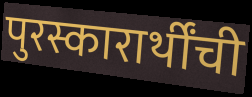
पुरस्कारार्थींची